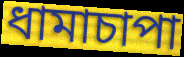
ধামাচাপা